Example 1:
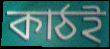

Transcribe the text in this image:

কাঠই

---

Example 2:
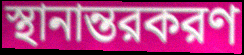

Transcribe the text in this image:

স্থানান্তরকরণ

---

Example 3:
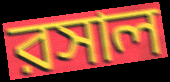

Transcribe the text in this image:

রসাল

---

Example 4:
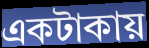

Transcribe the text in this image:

একটাকায়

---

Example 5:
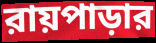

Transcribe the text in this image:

রায়পাড়ার